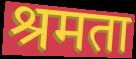
श्रमता